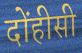
दोंहीसी